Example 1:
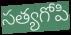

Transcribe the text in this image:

సత్యగోపి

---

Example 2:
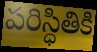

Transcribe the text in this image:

పరిస్ధితికి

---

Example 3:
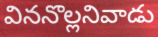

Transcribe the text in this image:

విననొల్లనివాడు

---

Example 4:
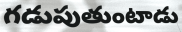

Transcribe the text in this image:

గడుపుతుంటాడు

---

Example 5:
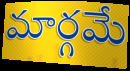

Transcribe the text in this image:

మార్గమే